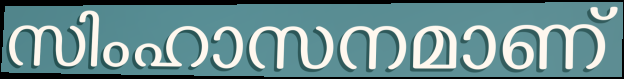
സിംഹാസനമാണ്